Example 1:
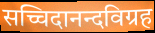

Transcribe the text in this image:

सच्चिदानन्दविग्रह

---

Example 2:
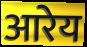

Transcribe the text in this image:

आरेय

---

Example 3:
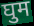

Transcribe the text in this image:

घुम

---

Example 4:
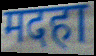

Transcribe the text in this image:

मदहा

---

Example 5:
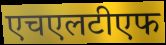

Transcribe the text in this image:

एचएलटीएफ